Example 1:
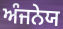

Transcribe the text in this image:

ਅੰਜਨੇਯ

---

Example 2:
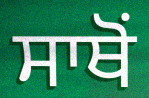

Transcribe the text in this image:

ਸਾਥੋਂ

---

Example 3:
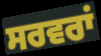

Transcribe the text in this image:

ਸਰਵਰਾਂ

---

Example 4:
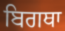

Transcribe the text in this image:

ਬਿਗਥਾ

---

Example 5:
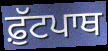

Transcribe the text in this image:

ਫ਼ੁੱਟਪਾਥ